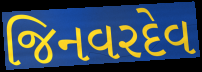
જિનવરદેવ